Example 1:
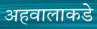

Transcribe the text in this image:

अहवालाकडे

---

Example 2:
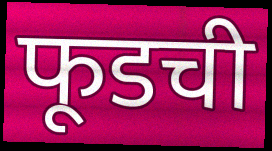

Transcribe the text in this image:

फूडची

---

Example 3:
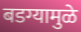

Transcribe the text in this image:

बडग्यामुळे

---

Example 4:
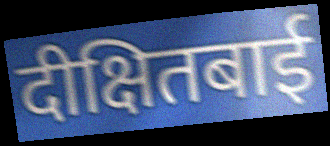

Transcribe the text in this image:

दीक्षितबाई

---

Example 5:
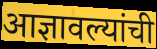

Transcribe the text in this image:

आज्ञावल्यांची